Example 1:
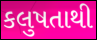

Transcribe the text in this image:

કલુષતાથી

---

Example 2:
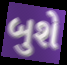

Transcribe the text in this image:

બુશે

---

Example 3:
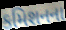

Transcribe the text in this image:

કમિશનના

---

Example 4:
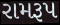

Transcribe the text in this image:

રામરૂપ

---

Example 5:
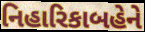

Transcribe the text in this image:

નિહારિકાબહેને